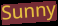
Sunny